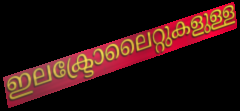
ഇലക്ട്രോലൈറ്റുകളുള്ള